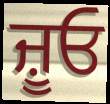
ਜ਼ੂਓ